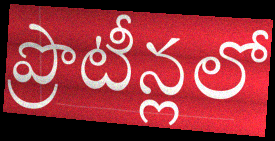
ప్రొటీన్లలో